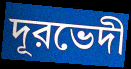
দূরভেদী